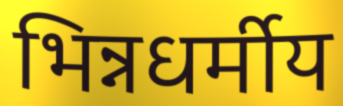
भिन्नधर्मीय